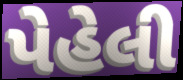
પેહેલી